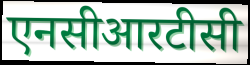
एनसीआरटीसी